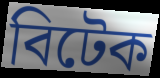
বিটেক